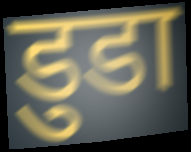
डुडा